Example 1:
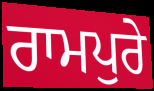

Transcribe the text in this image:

ਰਾਮਪੁਰੇ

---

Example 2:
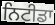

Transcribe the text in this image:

ਨਿਟੀਡਾ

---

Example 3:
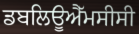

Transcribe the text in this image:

ਡਬਲਿਊਐੱਮਸੀਸੀ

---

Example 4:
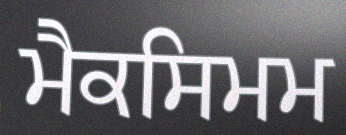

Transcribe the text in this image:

ਮੈਕਸਿਮਮ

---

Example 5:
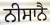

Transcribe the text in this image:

ਨੀਸਾਨੈ